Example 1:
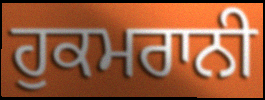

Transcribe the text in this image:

ਹੁਕਮਰਾਨੀ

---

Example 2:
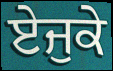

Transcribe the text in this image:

ਏਜੁਕੇ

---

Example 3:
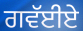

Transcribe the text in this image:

ਗਵੱਈਏ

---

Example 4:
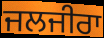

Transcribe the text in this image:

ਜਲਜੀਰਾ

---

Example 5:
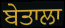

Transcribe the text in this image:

ਬੇਤਾਲਾ